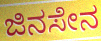
ಜಿನಸೇನ